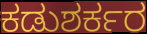
ಕಡುಶರ್ಕರ